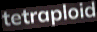
tetraploid